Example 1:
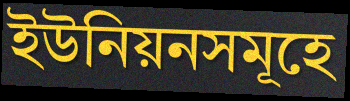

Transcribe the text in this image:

ইউনিয়নসমূহে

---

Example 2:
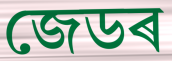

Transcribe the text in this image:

জেডৰ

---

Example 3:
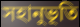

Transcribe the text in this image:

সহানুভূতি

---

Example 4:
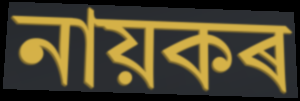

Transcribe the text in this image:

নায়কৰ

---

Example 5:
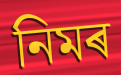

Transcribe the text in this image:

নিমৰ